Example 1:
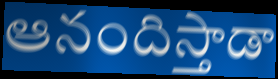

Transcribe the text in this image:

ఆనందిస్తాడా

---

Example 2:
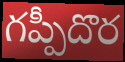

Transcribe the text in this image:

గప్పీదొర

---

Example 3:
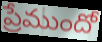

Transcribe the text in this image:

ప్రేముందో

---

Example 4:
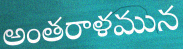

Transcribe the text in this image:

అంతరాళమున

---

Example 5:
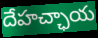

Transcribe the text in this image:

దేహచ్ఛాయ